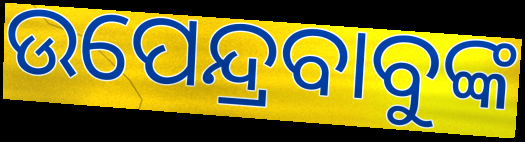
ଉପେନ୍ଦ୍ରବାବୁଙ୍କ